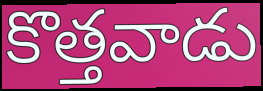
కొత్తవాడు